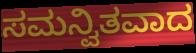
ಸಮನ್ವಿತವಾದ